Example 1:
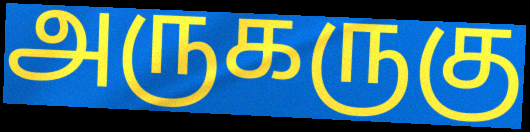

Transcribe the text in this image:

அருகருகு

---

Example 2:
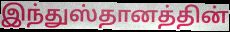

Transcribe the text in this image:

இந்துஸ்தானத்தின்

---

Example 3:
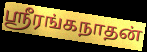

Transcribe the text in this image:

ஸ்ரீரங்கநாதன்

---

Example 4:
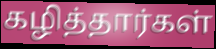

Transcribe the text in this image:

கழித்தார்கள்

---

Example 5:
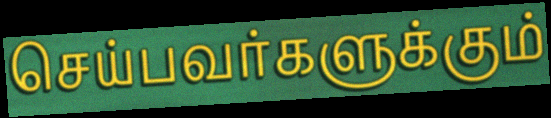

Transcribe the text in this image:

செய்பவர்களுக்கும்